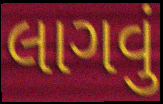
લાગવું